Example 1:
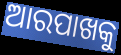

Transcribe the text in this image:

ଆରପାଖକୁ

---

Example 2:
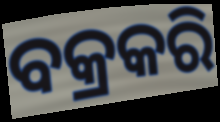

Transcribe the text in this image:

ବକ୍ରକରି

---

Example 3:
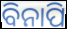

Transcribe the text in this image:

ବିନାପି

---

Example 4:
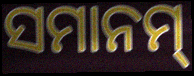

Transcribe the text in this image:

ସମାନମ୍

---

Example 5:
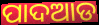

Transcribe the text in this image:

ପାଦଆଡ